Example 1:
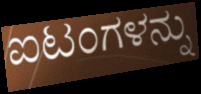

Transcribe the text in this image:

ಐಟಂಗಳನ್ನು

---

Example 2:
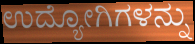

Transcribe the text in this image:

ಉದ್ಯೋಗಿಗಳನ್ನು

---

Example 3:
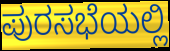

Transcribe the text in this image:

ಪುರಸಭೆಯಲ್ಲಿ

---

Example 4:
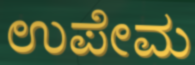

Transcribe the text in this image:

ಉಪೇಮ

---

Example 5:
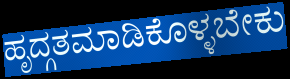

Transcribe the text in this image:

ಹೃದ್ಗತಮಾಡಿಕೊಳ್ಳಬೇಕು